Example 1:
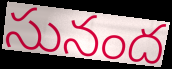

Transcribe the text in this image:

సునంద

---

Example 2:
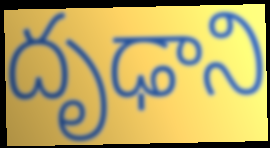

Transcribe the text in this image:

దృఢాని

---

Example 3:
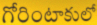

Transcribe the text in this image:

గోరింటాకులో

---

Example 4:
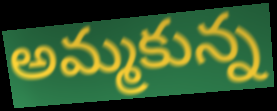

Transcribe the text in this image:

అమ్మకున్న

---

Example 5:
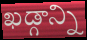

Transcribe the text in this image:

ఖడ్గాన్ని